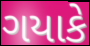
ગયાકે